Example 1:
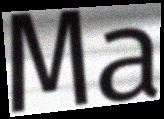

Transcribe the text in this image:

Ma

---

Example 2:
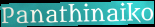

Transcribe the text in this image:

Panathinaiko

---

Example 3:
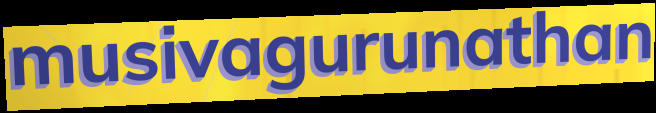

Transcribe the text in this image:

musivagurunathan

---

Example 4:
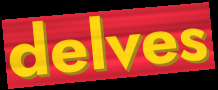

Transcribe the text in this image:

delves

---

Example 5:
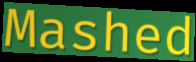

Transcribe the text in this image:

Mashed